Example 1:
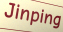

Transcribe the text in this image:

Jinping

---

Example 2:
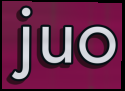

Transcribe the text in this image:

juo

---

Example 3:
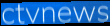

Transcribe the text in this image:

ctvnews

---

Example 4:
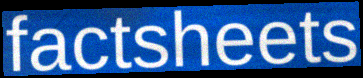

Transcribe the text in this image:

factsheets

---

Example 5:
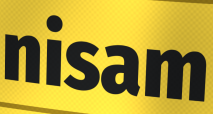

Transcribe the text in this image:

nisam